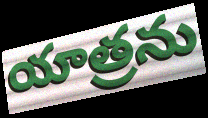
యాత్రను